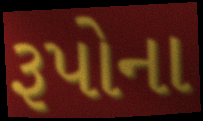
રૂપોના